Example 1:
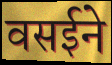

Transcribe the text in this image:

वसईने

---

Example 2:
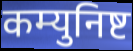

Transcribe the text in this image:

कम्युनिष्ट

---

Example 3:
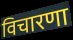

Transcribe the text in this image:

विचारणा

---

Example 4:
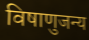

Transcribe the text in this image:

विषाणुजन्य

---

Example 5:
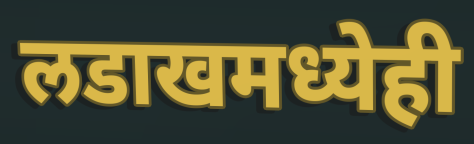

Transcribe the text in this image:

लडाखमध्येही